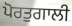
ਪੋਰਤੁਗਾਲੀ